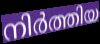
നിർത്തിയ